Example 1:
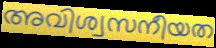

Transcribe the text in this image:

അവിശ്വസനീയത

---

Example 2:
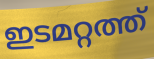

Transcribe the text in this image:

ഇടമറ്റത്ത്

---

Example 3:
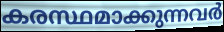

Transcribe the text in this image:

കരസ്ഥമാക്കുന്നവർ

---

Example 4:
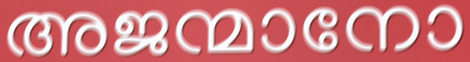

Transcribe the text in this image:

അജന്മാനോ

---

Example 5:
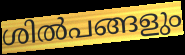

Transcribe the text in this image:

ശിൽപങ്ങളും